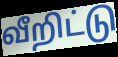
வீறிட்டு